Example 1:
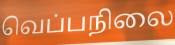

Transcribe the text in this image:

வெப்பநிலை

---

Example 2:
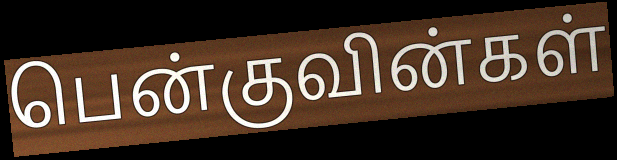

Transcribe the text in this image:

பென்குவின்கள்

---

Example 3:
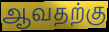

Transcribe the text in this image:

ஆவதற்கு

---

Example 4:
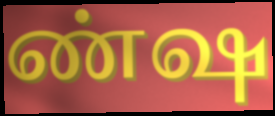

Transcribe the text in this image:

ண்ஷ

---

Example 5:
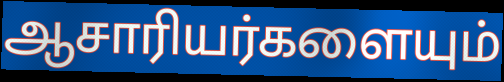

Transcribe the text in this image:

ஆசாரியர்களையும்